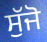
ਸੁੱਜੋ